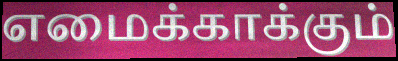
எமைக்காக்கும்